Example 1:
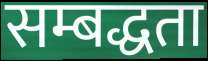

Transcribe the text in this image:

सम्‍बद्धता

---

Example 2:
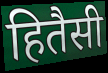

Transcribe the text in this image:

हितैसी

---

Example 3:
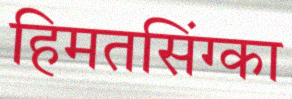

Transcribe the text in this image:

हिमतसिंग्का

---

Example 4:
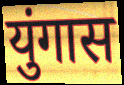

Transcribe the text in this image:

युंगास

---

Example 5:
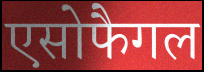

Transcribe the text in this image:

एसोफैगल